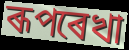
ৰূপৰেখা